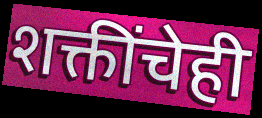
शक्तींचेही